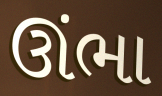
ઊંભા